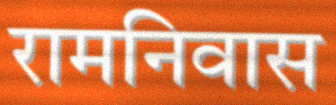
रामनिवास